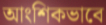
আংশিকভাবে